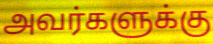
அவர்களுக்கு